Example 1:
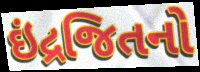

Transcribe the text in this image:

ઇંદ્રજિતનો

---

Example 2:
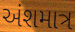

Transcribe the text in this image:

અંશમાત્ર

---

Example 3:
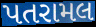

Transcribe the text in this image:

પતરામલ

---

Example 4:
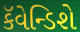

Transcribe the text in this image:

કૅવેન્ડિશે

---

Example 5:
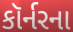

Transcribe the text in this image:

કૉર્નરના